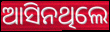
ଆସିନଥିଲେ